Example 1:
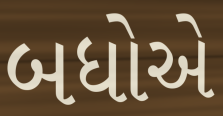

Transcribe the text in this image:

બધોએ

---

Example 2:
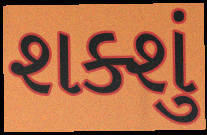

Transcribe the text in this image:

શક્શું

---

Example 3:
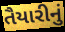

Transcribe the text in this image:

તૈયારીનું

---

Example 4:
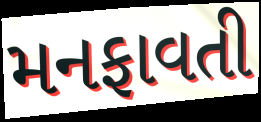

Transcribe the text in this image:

મનફાવતી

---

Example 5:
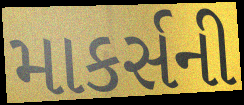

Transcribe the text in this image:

માકર્સની